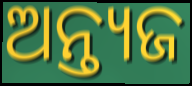
ଅନ୍ତ୍ୟଜ